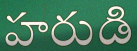
హరుడి